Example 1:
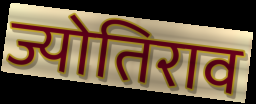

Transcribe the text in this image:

ज्योतिराव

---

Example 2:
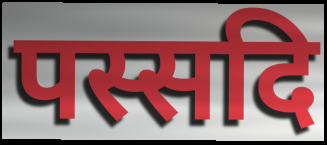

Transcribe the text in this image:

पस्सदि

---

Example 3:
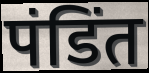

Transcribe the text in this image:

पंडिंत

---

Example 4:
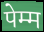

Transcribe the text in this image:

पेम्म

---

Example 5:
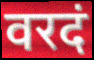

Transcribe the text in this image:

वरदं